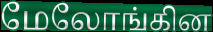
மேலோங்கின